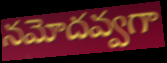
నమోదవ్వగా